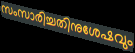
സംസാരിച്ചതിനുശേഷവും